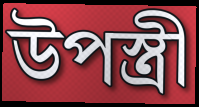
উপস্ত্রী